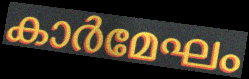
കാർമേഘം